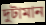
দুটামান